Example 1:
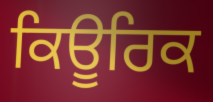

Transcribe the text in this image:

ਕਿਊਰਿਕ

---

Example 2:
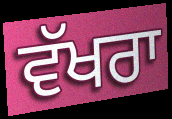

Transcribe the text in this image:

ਵੱਖਰਾ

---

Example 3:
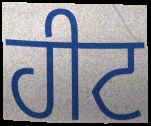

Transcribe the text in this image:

ਹੀਟ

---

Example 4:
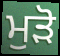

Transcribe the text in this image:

ਮੁਡ਼ੋ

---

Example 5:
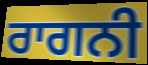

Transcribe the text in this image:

ਰਾਗਨੀ